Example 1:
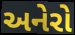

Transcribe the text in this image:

અનેરો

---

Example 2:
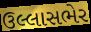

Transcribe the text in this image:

ઉલ્લાસભેર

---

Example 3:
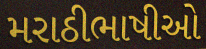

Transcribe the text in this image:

મરાઠીભાષીઓ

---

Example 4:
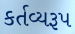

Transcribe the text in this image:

કર્તવ્યરૂપ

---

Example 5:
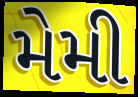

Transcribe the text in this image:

મેમી